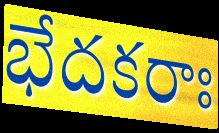
భేదకరాః